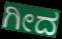
ಗೀದ